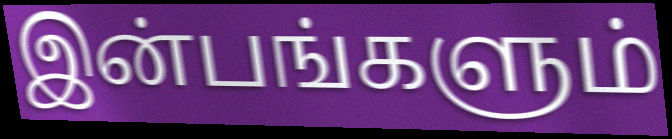
இன்பங்களும்